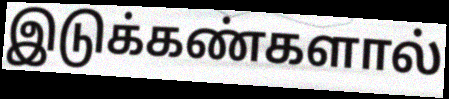
இடுக்கண்களால்